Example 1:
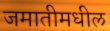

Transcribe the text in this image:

जमातीमधील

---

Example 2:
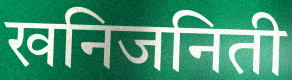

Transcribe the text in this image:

खनिजनिती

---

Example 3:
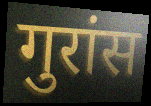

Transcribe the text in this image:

गुरांस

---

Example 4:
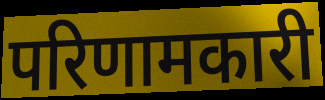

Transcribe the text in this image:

परिणामकारी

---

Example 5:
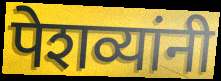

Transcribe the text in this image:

पेशव्यांनी